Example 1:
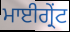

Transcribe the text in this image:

ਮਾਈਗ੍ਰੇਂਟ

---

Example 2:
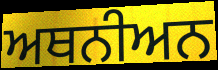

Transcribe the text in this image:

ਅਥਨੀਅਨ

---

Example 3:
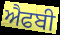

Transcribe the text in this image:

ਐਫਬੀ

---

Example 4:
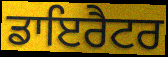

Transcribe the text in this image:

ਡਾਇਰੈਟਰ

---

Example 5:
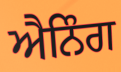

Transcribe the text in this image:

ਐਨਿੰਗ